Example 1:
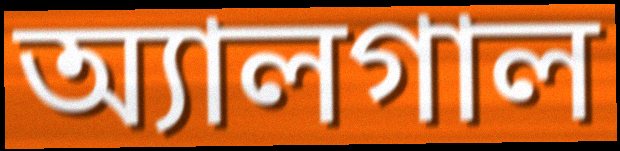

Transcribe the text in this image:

অ্যালগাল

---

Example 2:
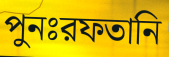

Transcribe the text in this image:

পুনঃরফতানি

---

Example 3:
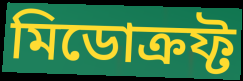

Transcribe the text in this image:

মিডোক্রফ্ট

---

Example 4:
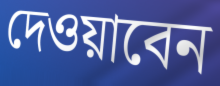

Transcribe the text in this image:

দেওয়াবেন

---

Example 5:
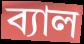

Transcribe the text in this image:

ব্যাল